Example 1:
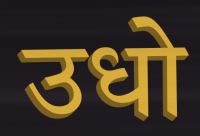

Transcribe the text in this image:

उधो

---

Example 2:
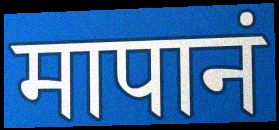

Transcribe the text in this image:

मापानं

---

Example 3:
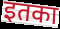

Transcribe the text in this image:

इतका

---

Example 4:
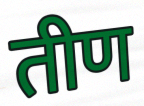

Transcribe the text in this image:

तीण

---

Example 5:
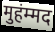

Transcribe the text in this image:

मुहंम्मद